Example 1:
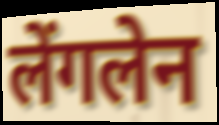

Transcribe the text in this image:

लेंगलेन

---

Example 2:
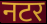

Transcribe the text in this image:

नटर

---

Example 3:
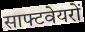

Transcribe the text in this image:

साफ्टवेयरों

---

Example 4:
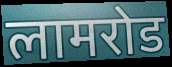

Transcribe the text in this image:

लामरोड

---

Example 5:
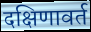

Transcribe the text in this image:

दक्षिणावर्त